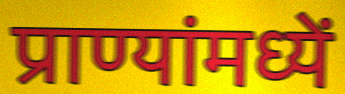
प्राण्यांमध्यें